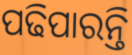
ପଢିପାରନ୍ତି